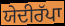
ਯੇਦੀਰੱਪਾ